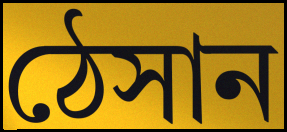
ঠেসান